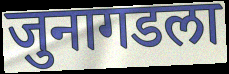
जुनागडला